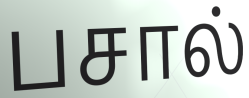
பசால்